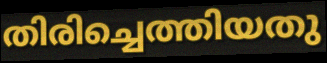
തിരിച്ചെത്തിയതു